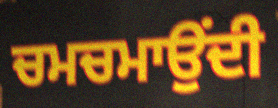
ਚਮਚਮਾਉਂਦੀ